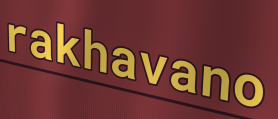
rakhavano